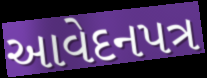
આવેદનપત્ર